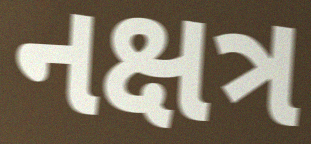
નક્ષત્ર